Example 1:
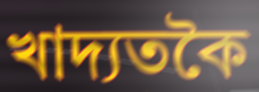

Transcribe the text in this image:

খাদ্যতকৈ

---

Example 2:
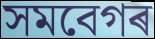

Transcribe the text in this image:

সমবেগৰ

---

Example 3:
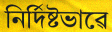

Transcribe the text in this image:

নিৰ্দিষ্টভাৱে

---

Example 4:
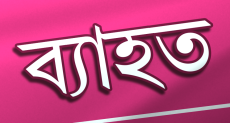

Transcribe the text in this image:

ব্যাহত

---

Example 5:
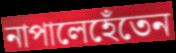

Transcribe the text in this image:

নাপালেহেঁতেন